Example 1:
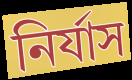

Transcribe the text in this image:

নিৰ্যাস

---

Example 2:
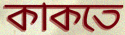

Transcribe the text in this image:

কাকতে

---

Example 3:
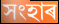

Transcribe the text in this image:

সংহাৰ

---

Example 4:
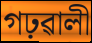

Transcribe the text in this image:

গঢ়ৱালী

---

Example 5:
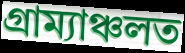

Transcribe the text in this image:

গ্ৰাম্যাঞ্চলত